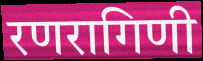
रणरागिणी